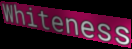
Whiteness